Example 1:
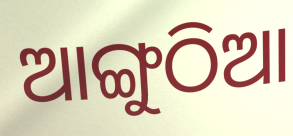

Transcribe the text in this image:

ଆଙ୍ଗୁଠିଆ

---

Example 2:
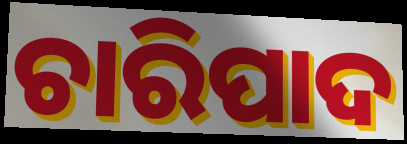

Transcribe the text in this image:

ଚାରିପାଦ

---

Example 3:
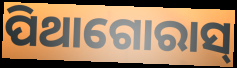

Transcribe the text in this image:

ପିଥାଗୋରାସ୍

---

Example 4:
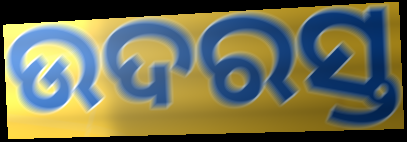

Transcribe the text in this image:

ଉଦରସ୍ତ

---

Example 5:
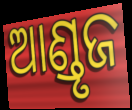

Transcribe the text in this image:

ଆଣ୍ଡୃଜ